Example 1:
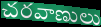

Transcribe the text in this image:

చరవాణులు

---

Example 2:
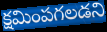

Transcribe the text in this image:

క్షమింపగలడని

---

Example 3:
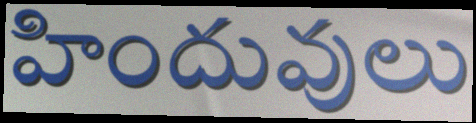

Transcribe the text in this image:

హిందువులు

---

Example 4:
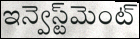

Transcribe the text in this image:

ఇన్వెస్ట్‌మెంట్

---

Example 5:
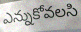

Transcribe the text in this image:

ఎన్నుకోవలసి